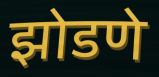
झोडणे